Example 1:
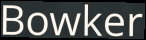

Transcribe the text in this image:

Bowker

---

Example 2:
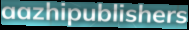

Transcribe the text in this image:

aazhipublishers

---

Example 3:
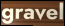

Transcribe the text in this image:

gravel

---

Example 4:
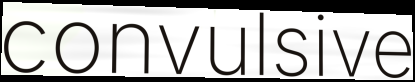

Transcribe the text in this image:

convulsive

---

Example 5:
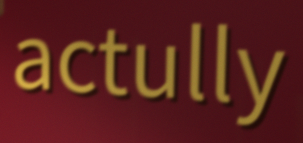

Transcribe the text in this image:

actully